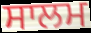
ਸਾਲਮ